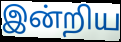
இன்றிய